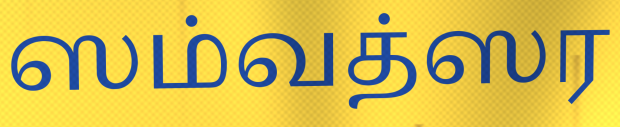
ஸம்வத்ஸர